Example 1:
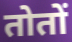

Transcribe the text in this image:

तोतों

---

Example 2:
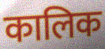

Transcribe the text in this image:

कालिक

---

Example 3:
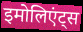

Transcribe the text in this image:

इमोलिएंट्स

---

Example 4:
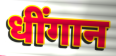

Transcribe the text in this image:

धींगान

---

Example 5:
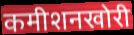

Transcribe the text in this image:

कमीशनखोरी